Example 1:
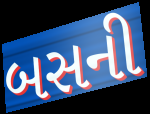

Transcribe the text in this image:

બસની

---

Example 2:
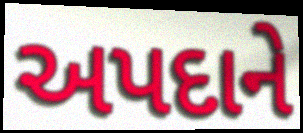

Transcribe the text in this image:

અપદાને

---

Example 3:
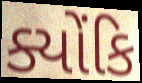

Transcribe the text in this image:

ક્યોંકિ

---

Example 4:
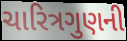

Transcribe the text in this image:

ચારિત્રગુણની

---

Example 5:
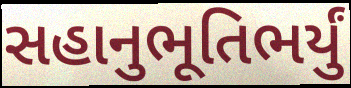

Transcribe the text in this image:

સહાનુભૂતિભર્યું